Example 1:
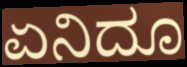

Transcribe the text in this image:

ಏನಿದೂ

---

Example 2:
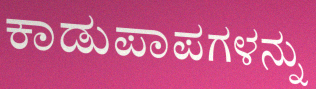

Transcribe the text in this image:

ಕಾಡುಪಾಪಗಳನ್ನು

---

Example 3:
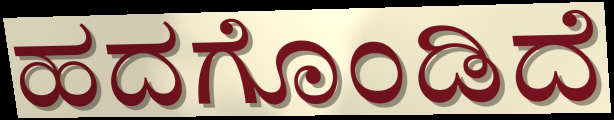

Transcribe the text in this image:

ಹದಗೊಂಡಿದೆ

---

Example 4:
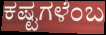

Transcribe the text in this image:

ಕಷ್ಟಗಳೆಂಬ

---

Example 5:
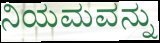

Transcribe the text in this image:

ನಿಯಮವನ್ನು